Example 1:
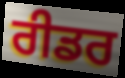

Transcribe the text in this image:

ਰੀਡਰ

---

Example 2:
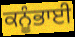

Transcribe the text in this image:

ਕਨੂੰਭਾਈ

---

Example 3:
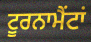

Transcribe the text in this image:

ਟੂਰਨਾਮੈਂਟਾਂ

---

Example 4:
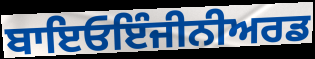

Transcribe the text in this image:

ਬਾਇਓਇੰਜੀਨੀਅਰਡ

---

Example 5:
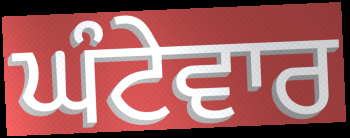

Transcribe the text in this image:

ਘੰਟੇਵਾਰ